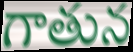
గాతున